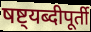
षष्ट्यब्दीपूर्ती